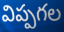
విప్పగల